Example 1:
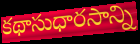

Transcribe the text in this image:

కథాసుధారసాన్ని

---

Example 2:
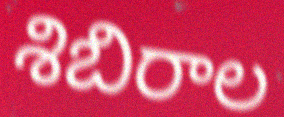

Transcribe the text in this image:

శిబిరాల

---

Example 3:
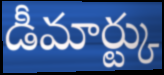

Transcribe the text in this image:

డీమార్ట్కు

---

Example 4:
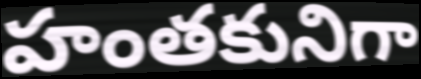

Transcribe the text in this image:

హంతకునిగా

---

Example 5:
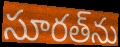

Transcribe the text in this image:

సూరత్‌ను